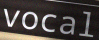
vocal